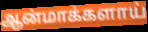
ஆன்மாக்களாய்